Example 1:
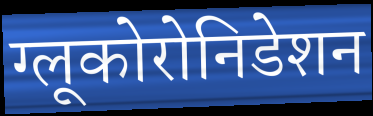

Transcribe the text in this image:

ग्लूकोरोनिडेशन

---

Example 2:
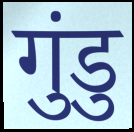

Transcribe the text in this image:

गुंडु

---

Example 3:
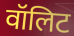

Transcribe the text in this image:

वॉलिट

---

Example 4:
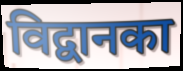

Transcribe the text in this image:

विद्वानका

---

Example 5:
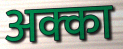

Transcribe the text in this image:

अक्का